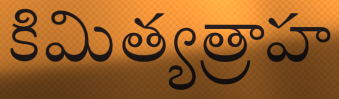
కిమిత్యత్రాహ